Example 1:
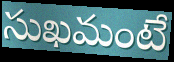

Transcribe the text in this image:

సుఖమంటే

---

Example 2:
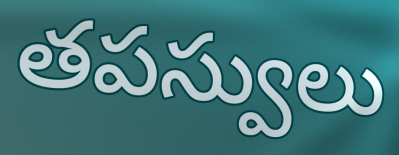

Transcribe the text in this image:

తపస్వులు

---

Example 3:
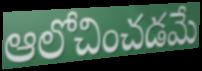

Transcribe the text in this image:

ఆలోచించడమే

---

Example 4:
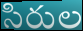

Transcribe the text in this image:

సిరుల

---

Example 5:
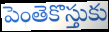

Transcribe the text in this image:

పెంతెకొస్తుకు